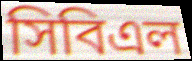
সিবিএল